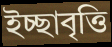
ইচ্ছাবৃত্তি